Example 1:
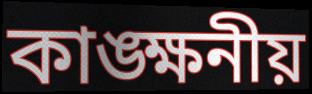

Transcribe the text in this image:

কাঙ্ক্ষনীয়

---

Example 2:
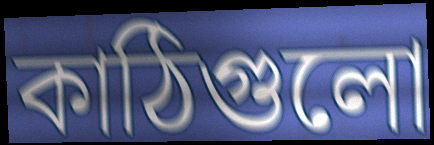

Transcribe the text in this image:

কাঠিগুলো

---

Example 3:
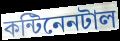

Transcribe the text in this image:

কন্টিনেনটাল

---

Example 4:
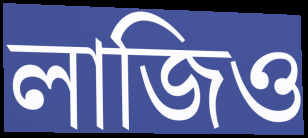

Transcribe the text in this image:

লাজিও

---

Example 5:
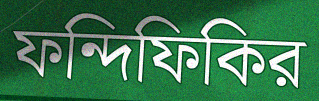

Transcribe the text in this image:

ফন্দিফিকির